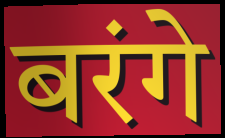
बरंगे